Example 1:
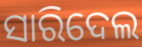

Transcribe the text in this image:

ସାରିଦେଲ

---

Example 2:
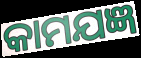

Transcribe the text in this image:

କାମଯଜ୍ଞ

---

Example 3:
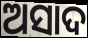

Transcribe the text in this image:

ଅସାଦ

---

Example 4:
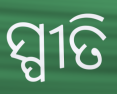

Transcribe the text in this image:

ସ୍ପୀତି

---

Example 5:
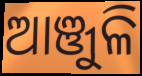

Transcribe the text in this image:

ଆଞ୍ଜୁଳି